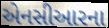
એનસીઆરના